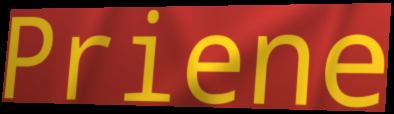
Priene